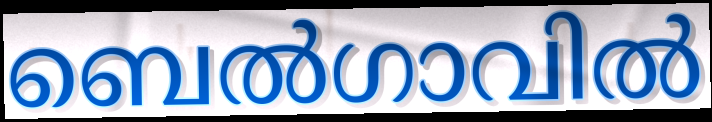
ബെൽഗാവിൽ